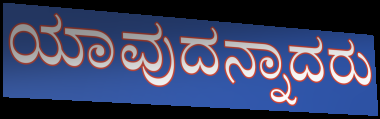
ಯಾವುದನ್ನಾದರು